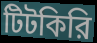
টিটকিরি